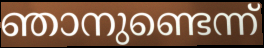
ഞാനുണ്ടെന്ന്